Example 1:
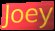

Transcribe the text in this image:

Joey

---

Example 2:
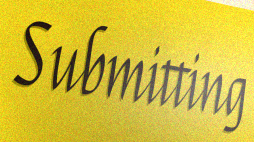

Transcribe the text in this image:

Submitting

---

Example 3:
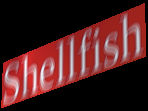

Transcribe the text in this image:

Shellfish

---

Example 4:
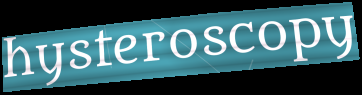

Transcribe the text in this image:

hysteroscopy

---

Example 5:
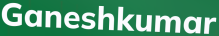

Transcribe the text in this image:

Ganeshkumar